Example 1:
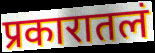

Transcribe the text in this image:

प्रकारातलं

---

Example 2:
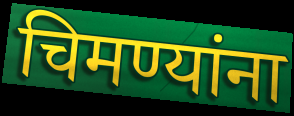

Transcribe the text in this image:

चिमण्यांना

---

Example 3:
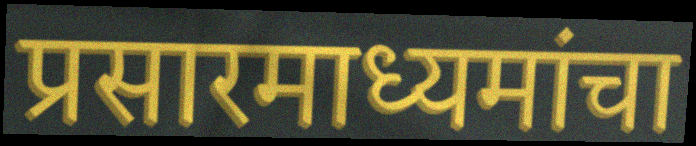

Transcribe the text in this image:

प्रसारमाध्यमांचा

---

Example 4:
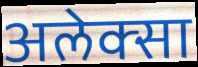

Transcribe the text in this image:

अलेक्‍सा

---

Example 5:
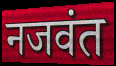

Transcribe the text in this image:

नजवंत